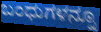
ಬಂಧುಗಳನ್ನೂ